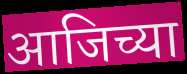
आजिच्या